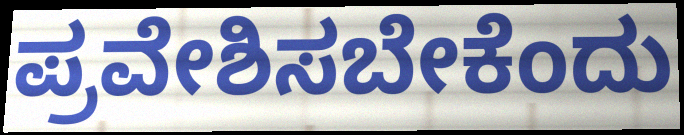
ಪ್ರವೇಶಿಸಬೇಕೆಂದು